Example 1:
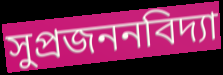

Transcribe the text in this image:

সুপ্রজননবিদ্যা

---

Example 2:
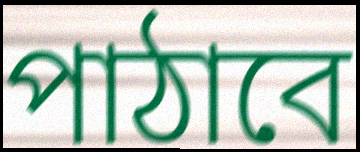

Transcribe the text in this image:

পাঠাবে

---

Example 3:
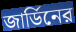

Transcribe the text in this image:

জার্ডিনের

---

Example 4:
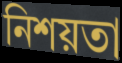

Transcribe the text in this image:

নিশয়তা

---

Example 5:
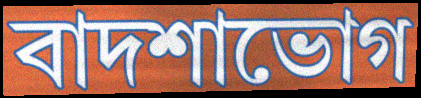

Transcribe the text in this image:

বাদশাভোগ